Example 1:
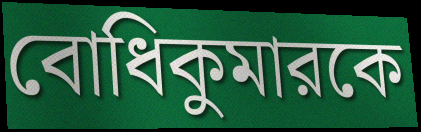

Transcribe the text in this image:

বোধিকুমারকে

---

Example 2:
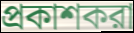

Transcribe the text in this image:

প্রকাশকরা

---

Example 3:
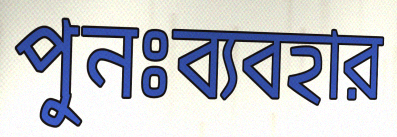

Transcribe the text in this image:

পুনঃব্যবহার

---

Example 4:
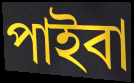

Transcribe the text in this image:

পাইবা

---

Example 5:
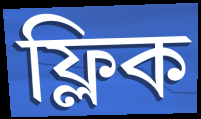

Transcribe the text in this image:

ফ্লিক